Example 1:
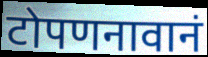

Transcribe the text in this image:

टोपणनावानं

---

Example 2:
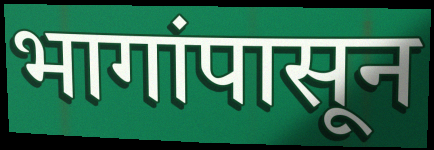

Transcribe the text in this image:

भागांपासून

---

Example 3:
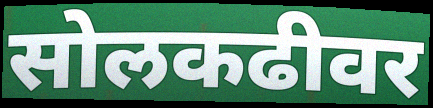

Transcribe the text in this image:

सोलकढीवर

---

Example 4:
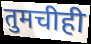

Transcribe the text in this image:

तुमचीही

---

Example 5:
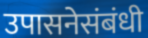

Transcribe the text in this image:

उपासनेसंबंधी